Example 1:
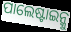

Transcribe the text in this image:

ପାଲେଷ୍ଟାଇନ୍କୁ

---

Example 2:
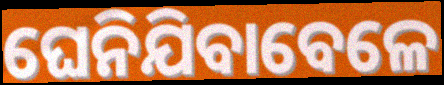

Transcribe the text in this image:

ଘେନିଯିବାବେଳେ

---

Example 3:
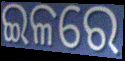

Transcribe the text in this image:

ଇଳରେ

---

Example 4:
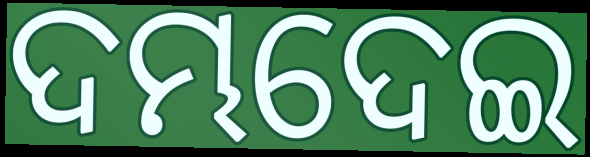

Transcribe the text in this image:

ଦମ୍ଭଦେଇ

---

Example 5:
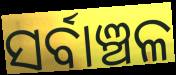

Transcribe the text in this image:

ସର୍ବାଞ୍ଚଳ